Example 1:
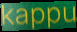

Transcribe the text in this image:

kappu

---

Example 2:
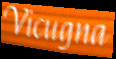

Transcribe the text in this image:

Vicugna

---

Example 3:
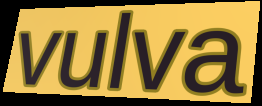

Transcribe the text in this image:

vulva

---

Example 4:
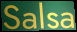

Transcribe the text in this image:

Salsa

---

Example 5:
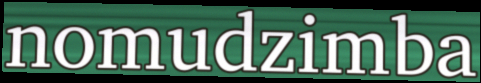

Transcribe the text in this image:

nomudzimba